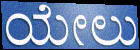
ಯೇಲು